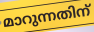
മാറുന്നതിന്